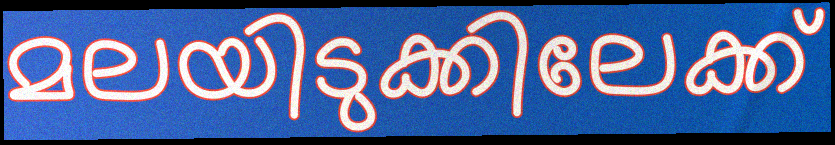
മലയിടുക്കിലേക്ക്